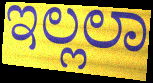
ಇಲ್ಲಲಾ